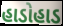
હાડોહાડ